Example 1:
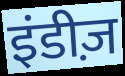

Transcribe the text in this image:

इंडीज़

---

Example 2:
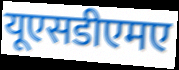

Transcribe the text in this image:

यूएसडीएमए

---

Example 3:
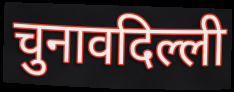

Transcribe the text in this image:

चुनावदिल्ली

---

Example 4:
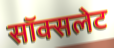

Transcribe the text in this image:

सॉक्सलेट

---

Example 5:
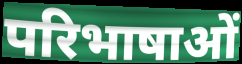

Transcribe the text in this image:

परिभाषाओं